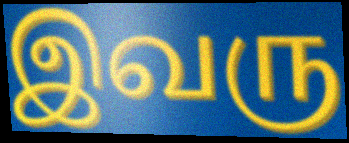
இவரு